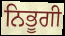
ਨਿਭੂਗੀ